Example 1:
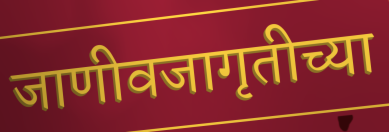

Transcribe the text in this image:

जाणीवजागृतीच्या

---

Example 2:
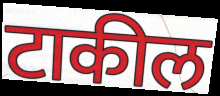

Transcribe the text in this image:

टाकील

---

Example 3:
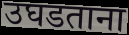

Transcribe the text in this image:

उघडताना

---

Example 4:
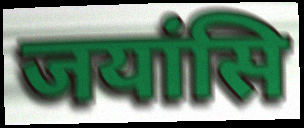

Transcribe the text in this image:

जयांसि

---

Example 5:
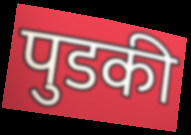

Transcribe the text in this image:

पुडकी